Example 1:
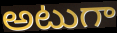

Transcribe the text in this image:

అటుగా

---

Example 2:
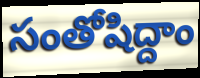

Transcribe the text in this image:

సంతోషిద్దాం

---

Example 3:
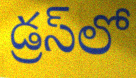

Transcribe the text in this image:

డ్రస్‌లో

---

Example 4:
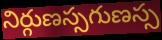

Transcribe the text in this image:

నిర్గుణస్సగుణస్స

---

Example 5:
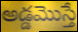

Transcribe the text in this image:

అడ్డమొస్తే